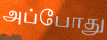
அப்போது